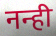
नन्ही